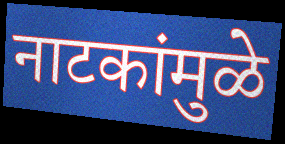
नाटकांमुळे